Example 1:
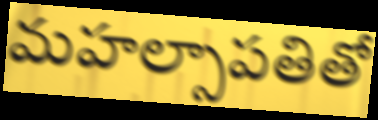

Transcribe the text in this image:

మహల్సాపతితో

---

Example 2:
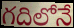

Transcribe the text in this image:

గదిలోనే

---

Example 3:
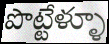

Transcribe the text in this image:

పొట్టేళ్ళూ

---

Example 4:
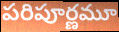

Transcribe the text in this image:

పరిపూర్ణమూ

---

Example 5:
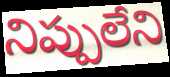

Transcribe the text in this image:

నిప్పులేని